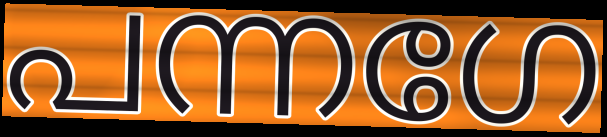
പന്നഗേ